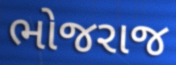
ભોજરાજ